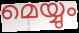
മെയ്യും